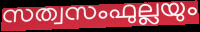
സത്വസംഫുല്ലയും